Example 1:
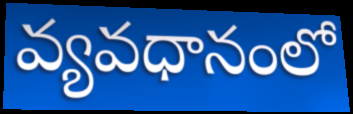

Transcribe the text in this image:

వ్యవధానంలో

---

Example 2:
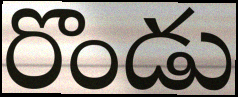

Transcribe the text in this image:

రొండు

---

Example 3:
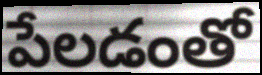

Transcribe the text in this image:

పేలడంతో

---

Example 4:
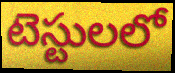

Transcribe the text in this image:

టెస్టులలో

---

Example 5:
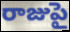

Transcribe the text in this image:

రాజుపై